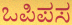
ಒಪಿಪಸ